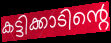
കട്ടിക്കാടിന്റെ